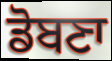
ਡੋਬਣਾ